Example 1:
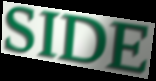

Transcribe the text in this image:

SIDE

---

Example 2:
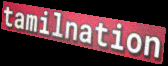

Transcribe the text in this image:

tamilnation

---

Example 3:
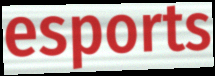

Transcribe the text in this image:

esports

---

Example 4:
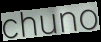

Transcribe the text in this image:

chuno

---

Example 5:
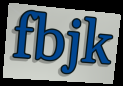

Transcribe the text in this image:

fbjk